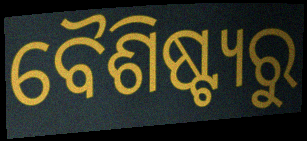
ବୈଶିଷ୍ଟ୍ୟରୁ